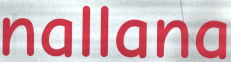
nallana